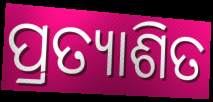
ପ୍ରତ୍ୟାଶିତ